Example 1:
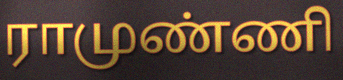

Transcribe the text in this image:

ராமுண்ணி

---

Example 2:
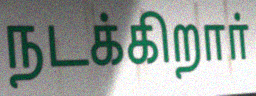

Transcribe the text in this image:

நடக்கிறார்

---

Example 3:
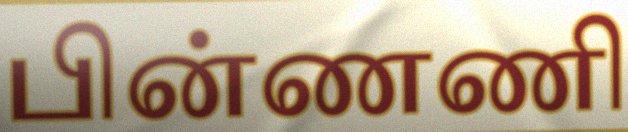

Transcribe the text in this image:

பின்ணணி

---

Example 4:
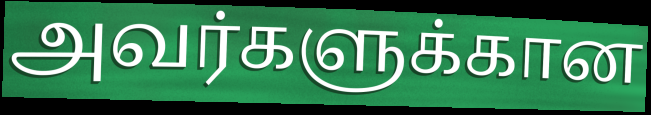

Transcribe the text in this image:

அவர்களுக்கான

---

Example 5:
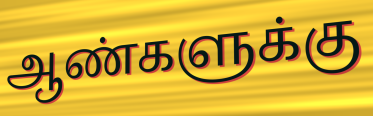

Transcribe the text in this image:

ஆண்களுக்கு